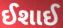
ઈશાઈ